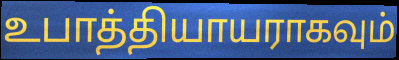
உபாத்தியாயராகவும்